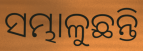
ସମ୍ଭାଳୁଛନ୍ତି